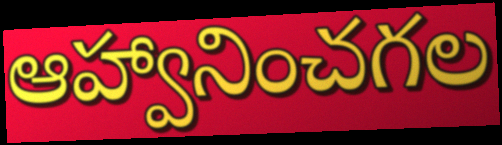
ఆహ్వానించగల